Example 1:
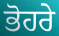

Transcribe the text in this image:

ਭੋਹਰੇ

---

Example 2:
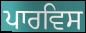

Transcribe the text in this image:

ਪਾਰਵਿਸ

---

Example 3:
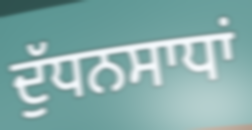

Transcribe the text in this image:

ਦੁੱਧਨਸਾਧਾਂ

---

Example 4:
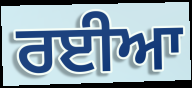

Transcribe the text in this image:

ਰਈਆ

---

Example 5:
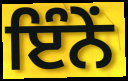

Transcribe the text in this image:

ਇੰਨੇਂ